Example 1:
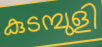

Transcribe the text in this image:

കുടമ്പുളി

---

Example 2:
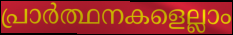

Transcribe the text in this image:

പ്രാർത്ഥനകളെല്ലാം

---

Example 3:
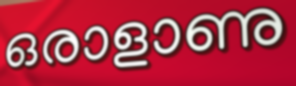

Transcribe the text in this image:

ഒരാളാണു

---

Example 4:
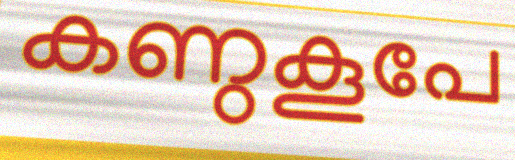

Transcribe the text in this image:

കണ്ഠകൂപേ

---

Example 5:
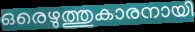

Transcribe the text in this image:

ഒരെഴുത്തുകാരനായി